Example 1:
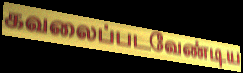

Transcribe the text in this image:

கவலைப்படவேண்டிய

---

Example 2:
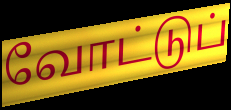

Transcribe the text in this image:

வோட்டுப்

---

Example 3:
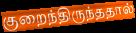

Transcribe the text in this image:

குறைந்திருந்ததால்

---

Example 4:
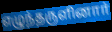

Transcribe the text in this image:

எழுந்தருளினார்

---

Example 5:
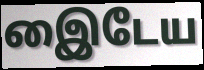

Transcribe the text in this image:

இைடேய